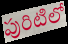
పురిటిలో